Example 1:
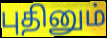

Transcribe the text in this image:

புதினும்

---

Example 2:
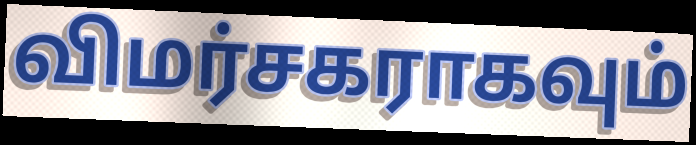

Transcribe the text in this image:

விமர்சகராகவும்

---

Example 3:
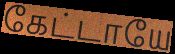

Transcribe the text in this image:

கேட்டாயே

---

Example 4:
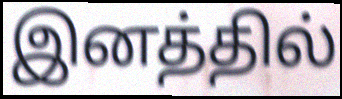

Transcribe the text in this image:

இனத்தில்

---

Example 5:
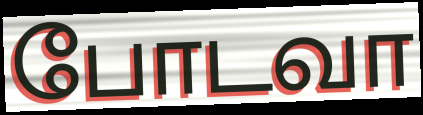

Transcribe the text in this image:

போடவா